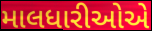
માલધારીઓએ